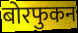
बोरफुकन